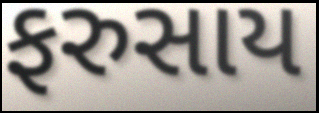
ફરુસાય